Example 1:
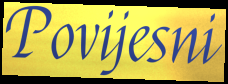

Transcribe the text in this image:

Povijesni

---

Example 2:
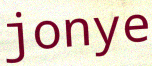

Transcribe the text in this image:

jonye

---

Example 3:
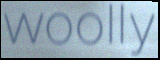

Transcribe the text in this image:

woolly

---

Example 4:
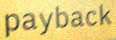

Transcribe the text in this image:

payback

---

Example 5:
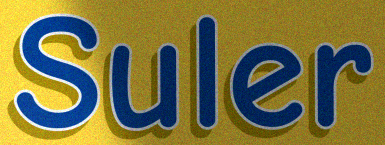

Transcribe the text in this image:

Suler